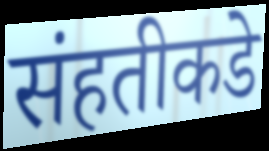
संहतीकडे